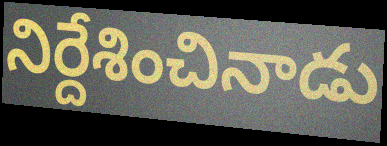
నిర్దేశించినాడు